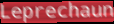
Leprechaun